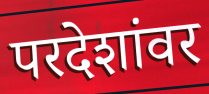
परदेशांवर